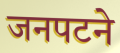
जनपटने